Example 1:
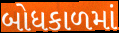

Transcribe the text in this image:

બોધકાળમાં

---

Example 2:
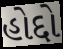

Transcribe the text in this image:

હોદ્દો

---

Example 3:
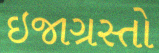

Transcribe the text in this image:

ઇજાગ્રસ્તો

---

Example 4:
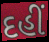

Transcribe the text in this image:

દહીં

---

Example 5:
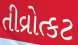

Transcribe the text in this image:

તીવ્રોત્કટ